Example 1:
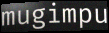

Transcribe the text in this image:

mugimpu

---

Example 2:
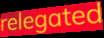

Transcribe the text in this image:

relegated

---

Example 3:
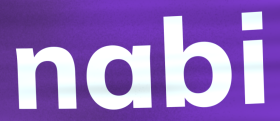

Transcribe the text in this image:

nabi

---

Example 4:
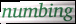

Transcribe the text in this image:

numbing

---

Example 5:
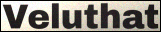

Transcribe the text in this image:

Veluthat